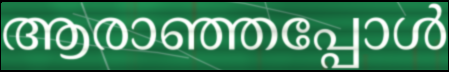
ആരാഞ്ഞപ്പോൾ